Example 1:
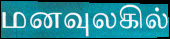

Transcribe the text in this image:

மனவுலகில்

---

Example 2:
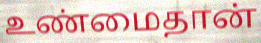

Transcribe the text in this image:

உண்மைதான்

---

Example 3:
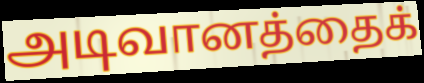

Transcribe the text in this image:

அடிவானத்தைக்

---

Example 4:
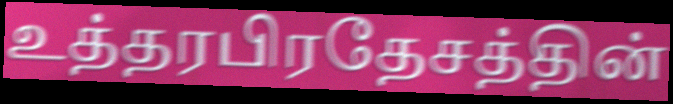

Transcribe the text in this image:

உத்தரபிரதேசத்தின்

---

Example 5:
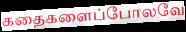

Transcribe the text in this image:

கதைகளைப்போலவே